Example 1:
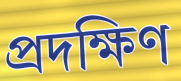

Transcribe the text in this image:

প্রদক্ষিণ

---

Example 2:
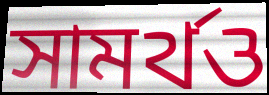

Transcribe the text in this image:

সামর্থও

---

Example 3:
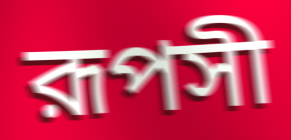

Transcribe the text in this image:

রূপসী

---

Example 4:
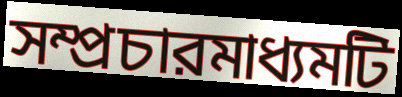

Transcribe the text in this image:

সম্প্রচারমাধ্যমটি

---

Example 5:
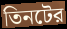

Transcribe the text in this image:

তিনটের